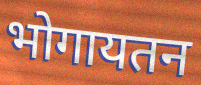
भोगायतन